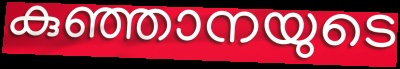
കുഞ്ഞാനയുടെ